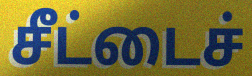
சீட்டைச்